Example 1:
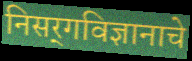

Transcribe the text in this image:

निसर्गविज्ञानाचे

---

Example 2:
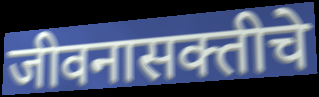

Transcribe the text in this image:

जीवनासक्तीचे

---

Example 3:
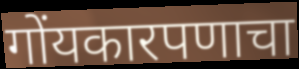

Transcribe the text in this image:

गोंयकारपणाचा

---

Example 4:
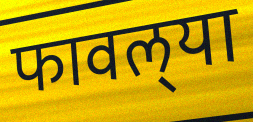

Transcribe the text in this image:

फावल्या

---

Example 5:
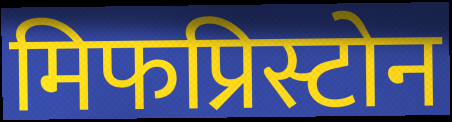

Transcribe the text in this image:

मिफप्रिस्टोन